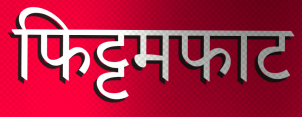
फिट्टमफाट